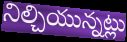
నిల్చియున్నట్లు